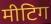
मीटिग